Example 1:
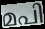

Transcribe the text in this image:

മപി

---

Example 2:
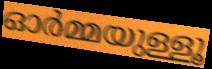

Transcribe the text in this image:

ഓർമ്മയുള്ളൂ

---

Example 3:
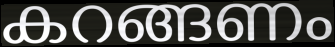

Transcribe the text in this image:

കറങ്ങണം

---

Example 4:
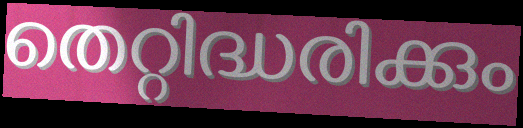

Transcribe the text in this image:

തെറ്റിദ്ധരിക്കും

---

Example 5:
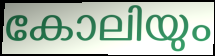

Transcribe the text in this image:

കോലിയും